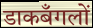
डाकबँगलों